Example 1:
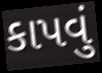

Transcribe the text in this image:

કાપવું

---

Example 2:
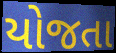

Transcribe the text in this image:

યોજતા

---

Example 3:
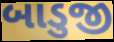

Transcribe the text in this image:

બાડુજી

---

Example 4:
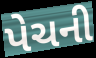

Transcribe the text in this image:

પેચની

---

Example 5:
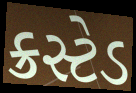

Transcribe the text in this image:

ક્રસ્ટેડ